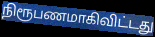
நிரூபணமாகிவிட்டது